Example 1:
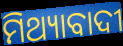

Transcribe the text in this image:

ମିଥ୍ୟାବାଦୀ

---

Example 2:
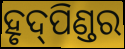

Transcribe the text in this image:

ହୃଦ୍‌ପିଣ୍ଡର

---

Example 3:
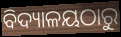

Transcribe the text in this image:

ବିଦ୍ୟାଳୟଠାରୁ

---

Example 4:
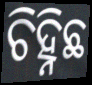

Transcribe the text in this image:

ଚିହ୍ନିଛ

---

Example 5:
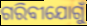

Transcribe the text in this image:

ଗରିବୀଯୋଗୁଁ